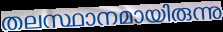
തലസ്ഥാനമായിരുന്നു